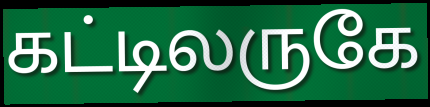
கட்டிலருகே